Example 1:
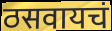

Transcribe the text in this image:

ठसवायचं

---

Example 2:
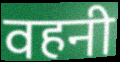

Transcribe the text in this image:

वहनी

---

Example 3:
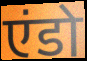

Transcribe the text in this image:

एंडो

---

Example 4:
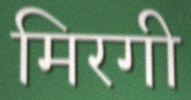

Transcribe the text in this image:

मिरगी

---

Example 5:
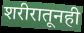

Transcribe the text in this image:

शरीरातूनही